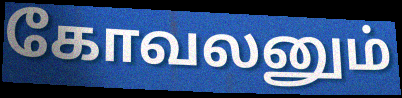
கோவலனும்